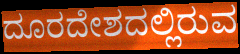
ದೂರದೇಶದಲ್ಲಿರುವ